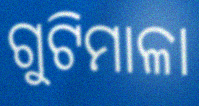
ଗୁଟିମାଳା